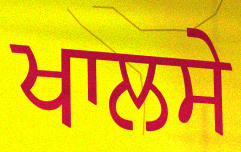
ਖਾਲਸੇ